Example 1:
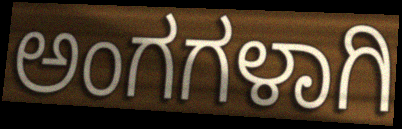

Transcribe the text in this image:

ಅಂಗಗಳಾಗಿ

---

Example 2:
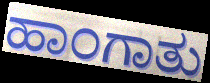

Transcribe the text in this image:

ಹಾಂಗಾತು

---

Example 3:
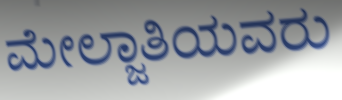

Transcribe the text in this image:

ಮೇಲ್ಜಾತಿಯವರು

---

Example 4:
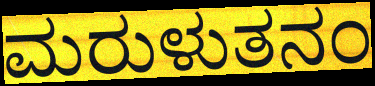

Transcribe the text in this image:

ಮರುಳುತನಂ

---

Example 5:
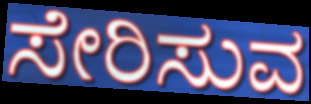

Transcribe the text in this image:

ಸೇರಿಸುವ